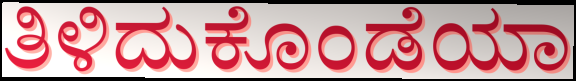
ತಿಳಿದುಕೊಂಡೆಯಾ